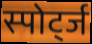
स्पोर्ट्ज